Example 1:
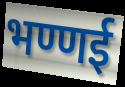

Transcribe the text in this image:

भण्णई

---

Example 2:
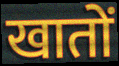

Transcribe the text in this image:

खातों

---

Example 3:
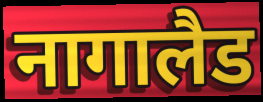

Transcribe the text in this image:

नागालैड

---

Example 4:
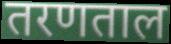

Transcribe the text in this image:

तरणताल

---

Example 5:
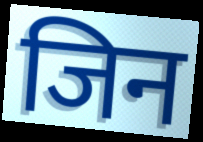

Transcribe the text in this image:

जिन